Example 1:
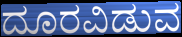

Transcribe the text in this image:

ದೂರವಿಡುವ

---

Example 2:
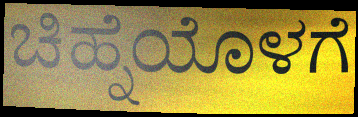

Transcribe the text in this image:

ಚಿಹ್ನೆಯೊಳಗೆ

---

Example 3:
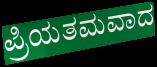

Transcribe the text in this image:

ಪ್ರಿಯತಮವಾದ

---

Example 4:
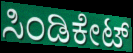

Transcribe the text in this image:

ಸಿಂಡಿಕೇಟ್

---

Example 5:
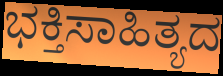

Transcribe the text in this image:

ಭಕ್ತಿಸಾಹಿತ್ಯದ